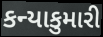
કન્યાકુમારી